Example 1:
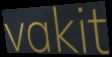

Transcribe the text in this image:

vakit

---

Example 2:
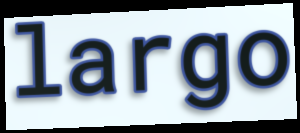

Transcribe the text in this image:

largo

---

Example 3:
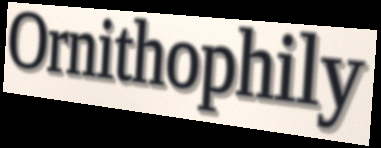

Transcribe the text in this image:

Ornithophily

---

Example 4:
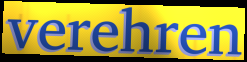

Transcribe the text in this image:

verehren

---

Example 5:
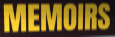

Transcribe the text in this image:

MEMOIRS